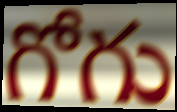
గోగు